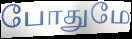
போதுமே